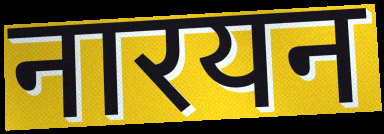
नारयन